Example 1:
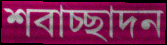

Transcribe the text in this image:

শবাচ্ছাদন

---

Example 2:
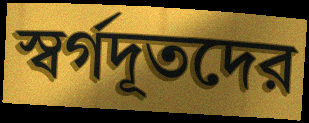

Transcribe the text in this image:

স্বর্গদূতদের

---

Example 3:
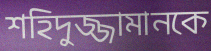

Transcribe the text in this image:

শহিদুজ্জামানকে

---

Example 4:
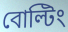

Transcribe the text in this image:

বোল্টিং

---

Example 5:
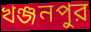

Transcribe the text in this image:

খঞ্জনপুর